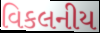
વિકલનીય